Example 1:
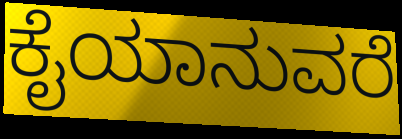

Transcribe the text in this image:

ಕೈಯಾನುವರೆ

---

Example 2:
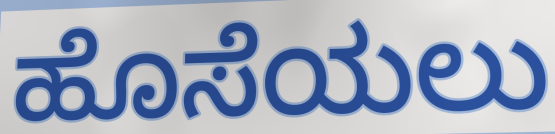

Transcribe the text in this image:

ಹೊಸೆಯಲು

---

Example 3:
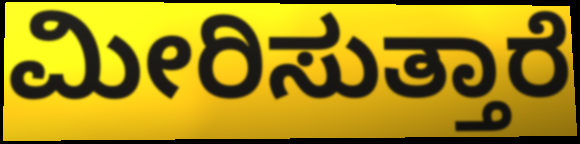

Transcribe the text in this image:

ಮೀರಿಸುತ್ತಾರೆ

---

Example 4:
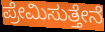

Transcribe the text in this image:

ಪ್ರೇಮಿಸುತ್ತೇನೆ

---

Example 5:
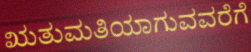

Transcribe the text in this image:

ಋತುಮತಿಯಾಗುವವರೆಗೆ